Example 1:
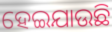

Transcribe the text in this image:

ହେଇଯାଉଛି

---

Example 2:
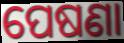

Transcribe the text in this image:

ପେଷଣା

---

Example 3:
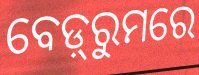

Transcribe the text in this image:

ବେଡ଼୍‌ରୁମରେ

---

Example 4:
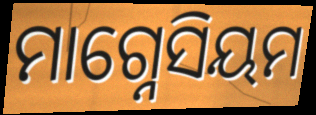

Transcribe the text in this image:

ମାଗ୍ନେସିୟମ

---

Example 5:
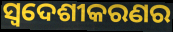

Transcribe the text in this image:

ସ୍ୱଦେଶୀକରଣର